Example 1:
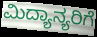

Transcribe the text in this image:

ಮಿದ್ಯಾನ್ಯರಿಗೆ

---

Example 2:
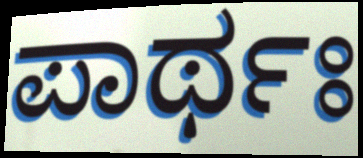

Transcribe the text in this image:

ಪಾರ್ಥಃ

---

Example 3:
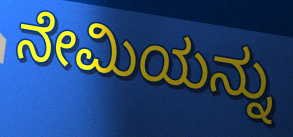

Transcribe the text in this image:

ನೇಮಿಯನ್ನು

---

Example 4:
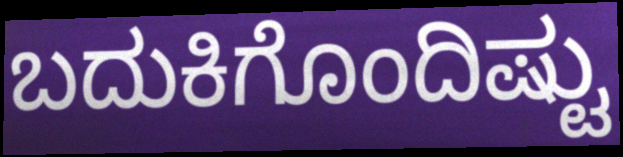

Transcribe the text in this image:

ಬದುಕಿಗೊಂದಿಷ್ಟು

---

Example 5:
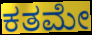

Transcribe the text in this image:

ಕತಮೇ